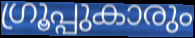
ഗ്രൂപ്പുകാരും